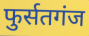
फुर्सतगंज